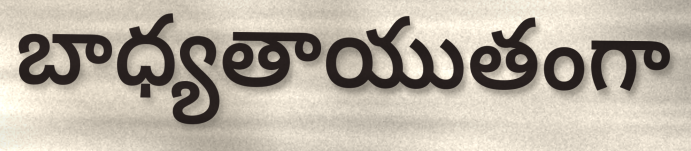
బాధ్యతాయుతంగా